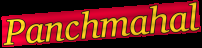
Panchmahal